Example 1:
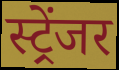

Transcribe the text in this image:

स्ट्रेंजर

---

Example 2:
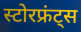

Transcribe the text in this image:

स्टोरफ्रंट्स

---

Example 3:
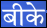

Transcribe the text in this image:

बीके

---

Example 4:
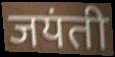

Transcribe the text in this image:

जयंती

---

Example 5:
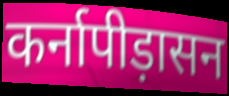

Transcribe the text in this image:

कर्नापीड़ासन